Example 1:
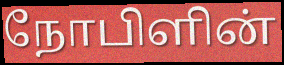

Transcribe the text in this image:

நோபிளின்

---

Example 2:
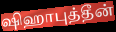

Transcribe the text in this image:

ஷிஹாபுத்தீன்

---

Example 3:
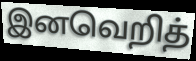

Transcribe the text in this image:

இனவெறித்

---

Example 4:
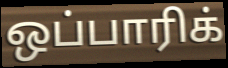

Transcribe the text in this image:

ஒப்பாரிக்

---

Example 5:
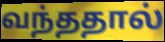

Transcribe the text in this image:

வந்ததால்